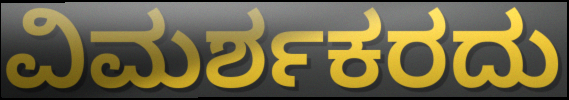
ವಿಮರ್ಶಕರದು